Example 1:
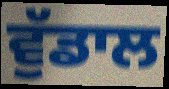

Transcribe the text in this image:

ਵੁੱਡਾਲ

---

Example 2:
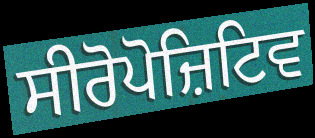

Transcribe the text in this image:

ਸੀਰੋਪੋਜ਼ਿਟਿਵ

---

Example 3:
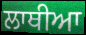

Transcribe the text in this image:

ਲਾਥੀਆ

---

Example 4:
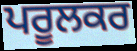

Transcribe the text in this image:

ਪਰੂਲਕਰ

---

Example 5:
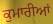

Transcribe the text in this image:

ਕੁਮਾਰੀਆਂ